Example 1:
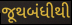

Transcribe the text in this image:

જૂથબંધીથી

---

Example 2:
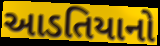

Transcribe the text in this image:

આડતિયાનો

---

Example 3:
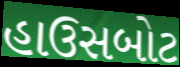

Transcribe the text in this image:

હાઉસબોટ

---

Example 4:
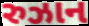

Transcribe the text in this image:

રુઝાન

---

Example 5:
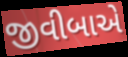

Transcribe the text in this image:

જીવીબાએ